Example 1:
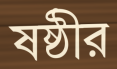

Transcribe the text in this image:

ষষ্ঠীর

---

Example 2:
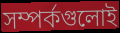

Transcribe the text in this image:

সম্পর্কগুলোই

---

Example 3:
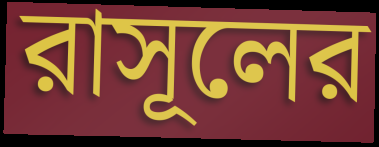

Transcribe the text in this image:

রাসূলের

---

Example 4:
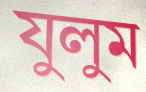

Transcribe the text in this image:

যুলুম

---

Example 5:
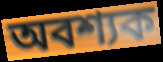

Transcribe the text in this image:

অবশ্যক